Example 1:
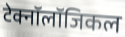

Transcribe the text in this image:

टेक्नॉलॉजिकल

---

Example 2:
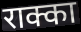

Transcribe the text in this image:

राक्का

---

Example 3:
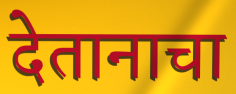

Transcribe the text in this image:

देतानाचा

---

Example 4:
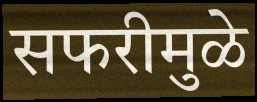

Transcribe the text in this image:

सफरीमुळे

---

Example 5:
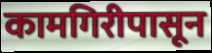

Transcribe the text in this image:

कामगिरीपासून